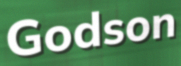
Godson